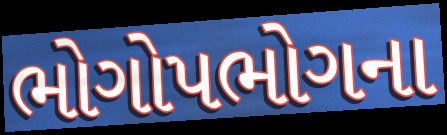
ભોગોપભોગના